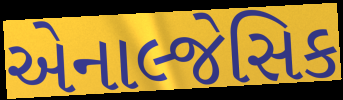
એનાલ્જેસિક